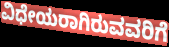
ವಿಧೇಯರಾಗಿರುವವರಿಗೆ